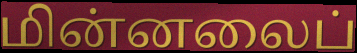
மின்னலைப்